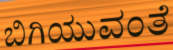
ಬಿಗಿಯುವಂತೆ